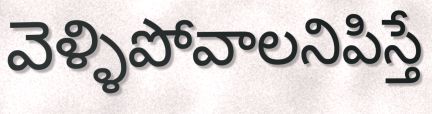
వెళ్ళిపోవాలనిపిస్తే